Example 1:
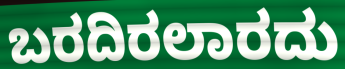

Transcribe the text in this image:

ಬರದಿರಲಾರದು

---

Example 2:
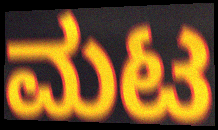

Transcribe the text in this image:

ಮಟ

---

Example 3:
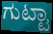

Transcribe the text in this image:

ಗುಟ್ಟಾ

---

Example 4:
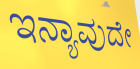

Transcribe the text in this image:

ಇನ್ಯಾವುದೇ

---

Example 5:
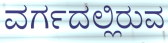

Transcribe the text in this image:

ವರ್ಗದಲ್ಲಿರುವ